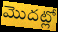
మొదట్లో